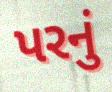
પરનું